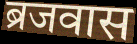
ब्रजवास